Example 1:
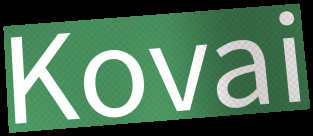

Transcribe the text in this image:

Kovai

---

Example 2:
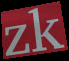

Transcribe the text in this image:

zk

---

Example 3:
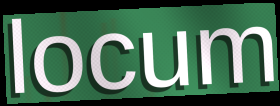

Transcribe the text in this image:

locum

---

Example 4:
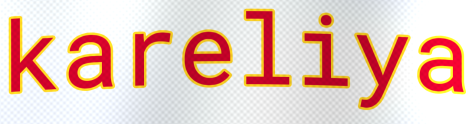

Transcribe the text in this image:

kareliya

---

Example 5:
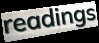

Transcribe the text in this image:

readings